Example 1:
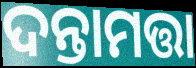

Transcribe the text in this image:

ଦନ୍ତାମତ୍ତା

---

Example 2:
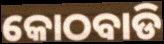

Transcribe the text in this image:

କୋଠବାଡି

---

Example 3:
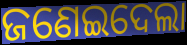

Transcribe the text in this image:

ଜଣେଇଦେଲା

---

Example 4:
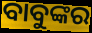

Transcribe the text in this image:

ବାବୁଙ୍କର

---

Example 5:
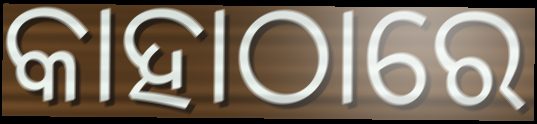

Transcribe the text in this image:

କାହାଠାରେ